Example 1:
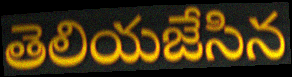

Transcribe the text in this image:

తెలియజేసిన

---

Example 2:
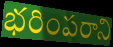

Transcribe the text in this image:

భరింపరాని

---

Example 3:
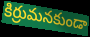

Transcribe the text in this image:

కిర్రుమనకుండా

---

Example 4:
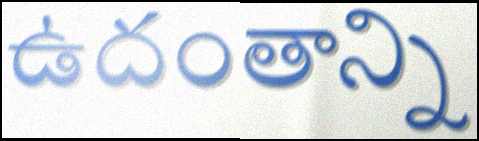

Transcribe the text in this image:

ఉదంతాన్ని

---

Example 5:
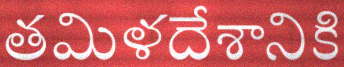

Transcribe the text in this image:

తమిళదేశానికి